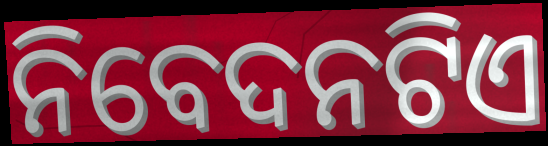
ନିବେଦନଟିଏ